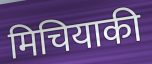
मिचियाकी